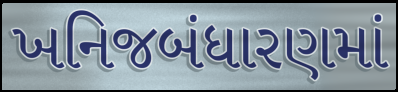
ખનિજબંધારણમાં